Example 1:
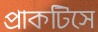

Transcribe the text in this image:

প্রাকটিসে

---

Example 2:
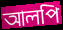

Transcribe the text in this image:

আলপি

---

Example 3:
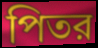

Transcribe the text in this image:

পিতর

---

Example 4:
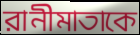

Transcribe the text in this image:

রানীমাতাকে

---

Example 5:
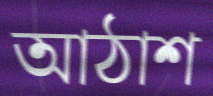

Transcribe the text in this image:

আঠাশ